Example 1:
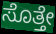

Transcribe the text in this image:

ಸೊತ್ತೇ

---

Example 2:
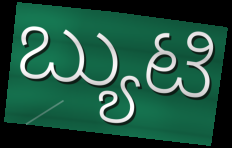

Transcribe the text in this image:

ಬ್ಯುಟಿ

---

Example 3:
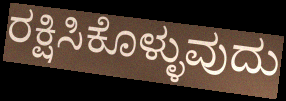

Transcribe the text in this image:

ರಕ್ಷಿಸಿಕೊಳ್ಳುವುದು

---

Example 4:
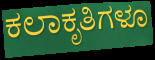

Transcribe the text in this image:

ಕಲಾಕೃತಿಗಳೂ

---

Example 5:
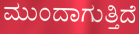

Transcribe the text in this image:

ಮುಂದಾಗುತ್ತಿದೆ